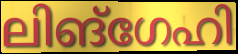
ലിങ്ഗേഹി